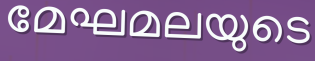
മേഘമലയുടെ